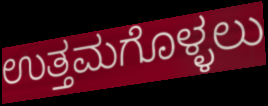
ಉತ್ತಮಗೊಳ್ಳಲು